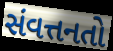
સંવત્તનતો